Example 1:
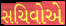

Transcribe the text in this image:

સચિવોએ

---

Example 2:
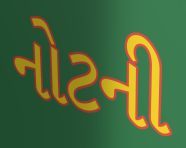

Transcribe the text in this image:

નોટની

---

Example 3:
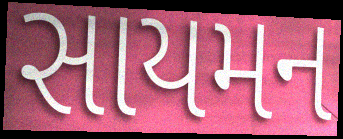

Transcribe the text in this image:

સાયમન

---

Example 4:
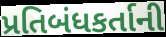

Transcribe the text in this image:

પ્રતિબંધકર્તાની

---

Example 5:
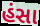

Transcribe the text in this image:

હંસા